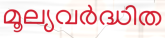
മൂല്യവർദ്ധിത